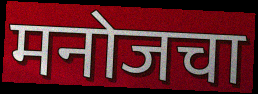
मनोजचा